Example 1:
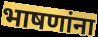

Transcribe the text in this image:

भाषणांना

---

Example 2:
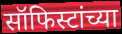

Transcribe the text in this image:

सॉफिस्टांच्या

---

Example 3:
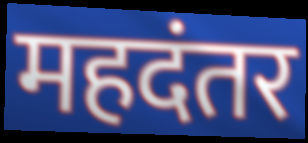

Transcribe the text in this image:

महदंतर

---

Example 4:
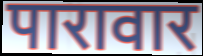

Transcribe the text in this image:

पारावार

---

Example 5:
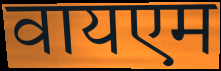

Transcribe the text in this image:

वायएम